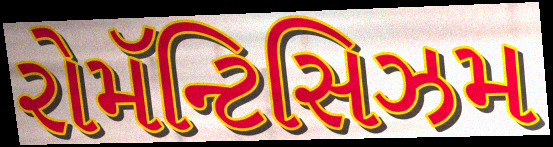
રોમૅન્ટિસિઝમ